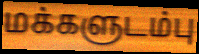
மக்களுடம்பு